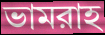
ভামরাহ